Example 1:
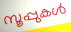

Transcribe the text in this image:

സൂപ്പുകൾ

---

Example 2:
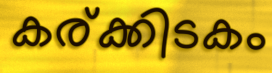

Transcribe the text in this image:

കര്ക്കിടകം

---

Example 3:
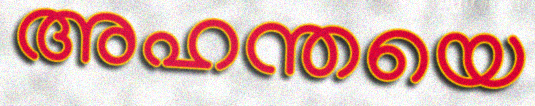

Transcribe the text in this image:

അഹന്തയെ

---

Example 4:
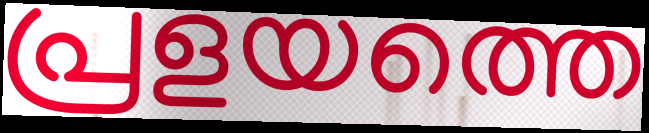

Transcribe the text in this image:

പ്രളയത്തെ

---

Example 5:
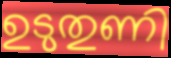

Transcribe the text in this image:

ഉടുതുണി